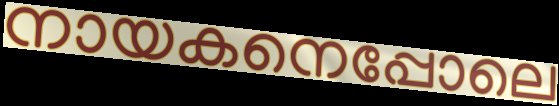
നായകനെപ്പോലെ